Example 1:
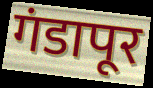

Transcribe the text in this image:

गंडापूर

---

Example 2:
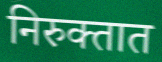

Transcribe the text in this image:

निरुक्तात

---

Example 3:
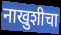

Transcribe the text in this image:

नाखुशीचा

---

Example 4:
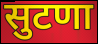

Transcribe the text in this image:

सुटणा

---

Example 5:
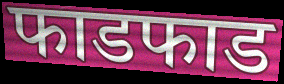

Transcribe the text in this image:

फाडफाड